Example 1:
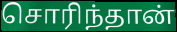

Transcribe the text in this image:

சொரிந்தான்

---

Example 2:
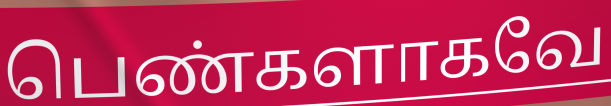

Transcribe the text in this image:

பெண்களாகவே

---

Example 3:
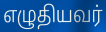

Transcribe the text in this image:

எழுதியவர்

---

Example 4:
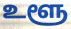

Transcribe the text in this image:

உளூ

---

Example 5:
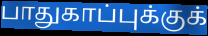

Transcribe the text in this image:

பாதுகாப்புக்குக்